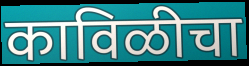
काविळीचा